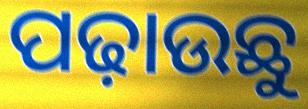
ପଢ଼ାଉଛୁ